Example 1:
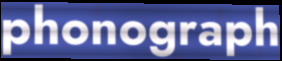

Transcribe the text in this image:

phonograph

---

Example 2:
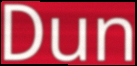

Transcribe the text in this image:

Dun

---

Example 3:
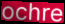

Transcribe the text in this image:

ochre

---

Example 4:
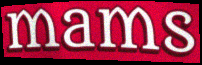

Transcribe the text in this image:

mams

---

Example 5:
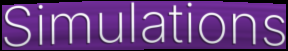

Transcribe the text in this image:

Simulations